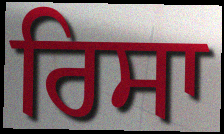
ਰਿਸਾ